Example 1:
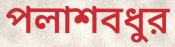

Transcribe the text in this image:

পলাশবধুর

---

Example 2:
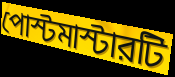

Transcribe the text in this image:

পোস্টমাস্টারটি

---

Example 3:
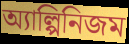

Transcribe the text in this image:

অ্যাল্পিনিজম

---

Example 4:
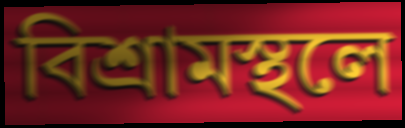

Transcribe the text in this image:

বিশ্রামস্থলে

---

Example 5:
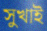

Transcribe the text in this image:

সুখাই